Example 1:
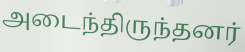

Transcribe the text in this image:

அடைந்திருந்தனர்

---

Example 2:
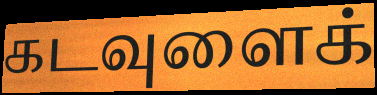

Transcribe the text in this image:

கடவுளைக்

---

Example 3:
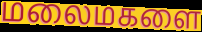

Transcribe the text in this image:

மலைமகளை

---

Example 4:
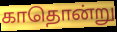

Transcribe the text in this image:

காதொன்று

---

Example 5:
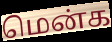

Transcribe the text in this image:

மென்க